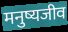
मनुष्यजीव